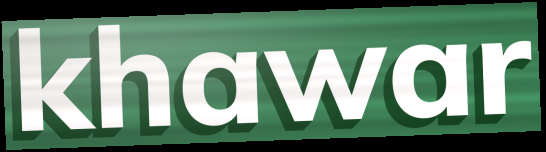
khawar